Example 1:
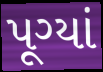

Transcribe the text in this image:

પૂગ્યાં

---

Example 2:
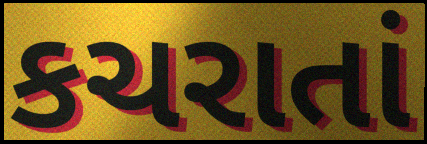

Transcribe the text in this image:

કચરાતાં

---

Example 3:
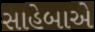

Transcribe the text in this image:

સાહેબાએ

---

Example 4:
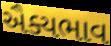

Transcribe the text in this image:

ઐક્યભાવ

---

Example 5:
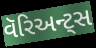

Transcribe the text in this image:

વૅરિઅન્ટ્સ